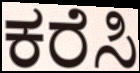
ಕರೆಸಿ